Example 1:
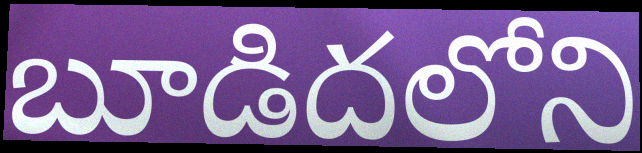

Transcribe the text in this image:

బూడిదలోని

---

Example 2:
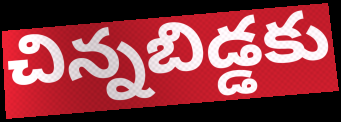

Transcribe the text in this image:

చిన్నబిడ్డకు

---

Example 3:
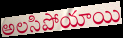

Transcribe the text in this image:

అలసిపోయాయి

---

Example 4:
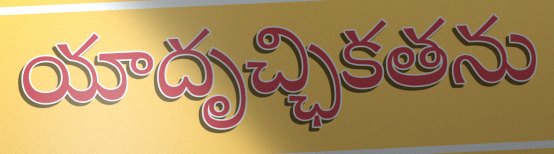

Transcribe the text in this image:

యాదృచ్ఛికతను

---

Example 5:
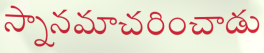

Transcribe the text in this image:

స్నానమాచరించాడు